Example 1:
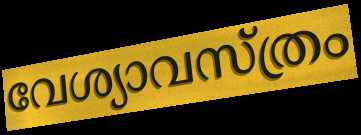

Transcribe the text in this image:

വേശ്യാവസ്ത്രം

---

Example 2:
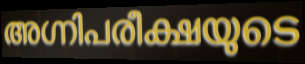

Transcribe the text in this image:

അഗ്നിപരീക്ഷയുടെ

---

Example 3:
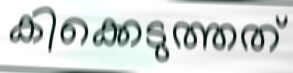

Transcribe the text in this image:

കിക്കെടുത്തത്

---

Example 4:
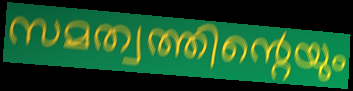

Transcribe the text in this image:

സമത്വത്തിന്റെയും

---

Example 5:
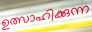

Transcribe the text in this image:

ഉത്സാഹിക്കുന്ന